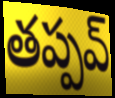
తప్పవ్